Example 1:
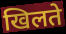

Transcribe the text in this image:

खिलते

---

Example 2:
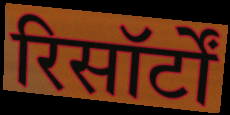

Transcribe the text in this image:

रिसॉर्टों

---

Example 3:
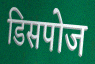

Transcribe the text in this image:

डिसपोज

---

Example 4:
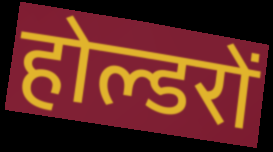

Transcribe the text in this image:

होल्डरों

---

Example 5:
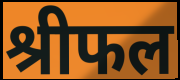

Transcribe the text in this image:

श्रीफल